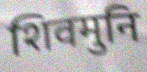
शिवमुनि